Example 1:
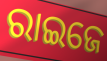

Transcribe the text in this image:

ରାଇଜେ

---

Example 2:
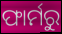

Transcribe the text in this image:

ଫାର୍ମରୁ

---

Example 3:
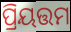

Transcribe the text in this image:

ପ୍ରିୟତ୍ତମ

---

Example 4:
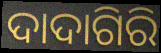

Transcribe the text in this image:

ଦାଦାଗିରି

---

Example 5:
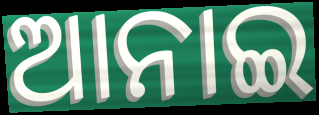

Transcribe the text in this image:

ଆନାଇ